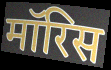
मॉरिस